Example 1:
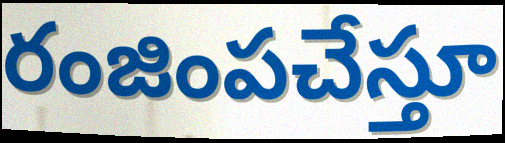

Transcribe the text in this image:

రంజింపచేస్తూ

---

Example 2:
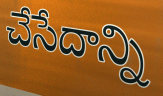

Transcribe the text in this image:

చేసేదాన్ని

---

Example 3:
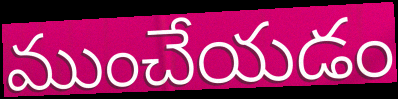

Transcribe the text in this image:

ముంచేయడం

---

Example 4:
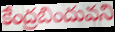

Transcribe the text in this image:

కేంద్రబిందువని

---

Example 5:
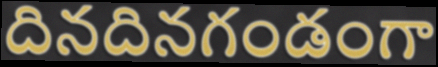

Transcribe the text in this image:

దినదినగండంగా